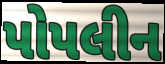
પોપલીન